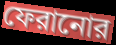
ফেরানোর